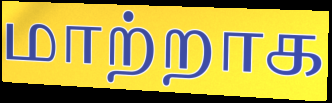
மாற்றாக